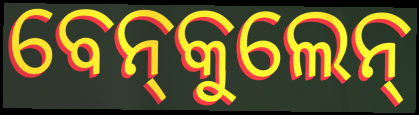
ବେନ୍‍କୁଲେନ୍